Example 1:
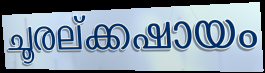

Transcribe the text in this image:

ചൂരല്ക്കഷായം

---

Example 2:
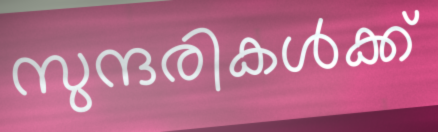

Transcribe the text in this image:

സുന്ദരികൾക്ക്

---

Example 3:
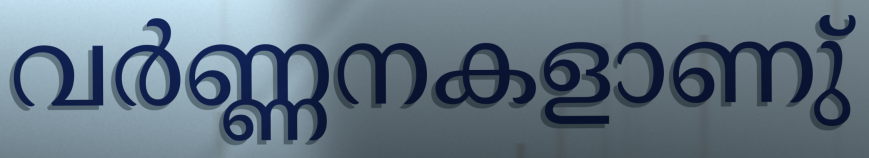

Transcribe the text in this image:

വർണ്ണനകളാണു്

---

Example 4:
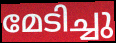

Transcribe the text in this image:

മേടിച്ചു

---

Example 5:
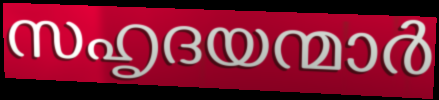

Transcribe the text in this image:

സഹൃദയന്മാർ